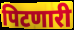
पिटणारी